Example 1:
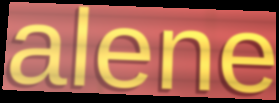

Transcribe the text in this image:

alene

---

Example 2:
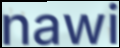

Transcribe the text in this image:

nawi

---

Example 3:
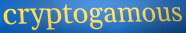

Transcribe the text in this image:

cryptogamous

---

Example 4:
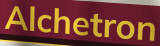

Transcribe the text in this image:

Alchetron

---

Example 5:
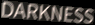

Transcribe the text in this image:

DARKNESS